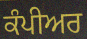
ਕੰਪੀਅਰ